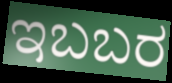
ಇಬಬರ